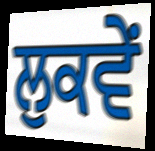
ਲੁਕਵੇਂ